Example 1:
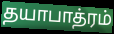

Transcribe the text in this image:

தயாபாத்ரம்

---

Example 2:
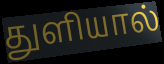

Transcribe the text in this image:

துளியால்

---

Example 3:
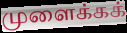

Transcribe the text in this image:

முளைக்கக்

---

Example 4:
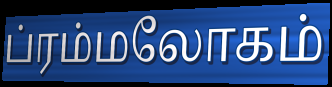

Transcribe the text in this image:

ப்ரம்மலோகம்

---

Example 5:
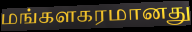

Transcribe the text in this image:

மங்களகரமானது